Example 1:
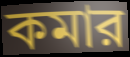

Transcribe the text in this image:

কমার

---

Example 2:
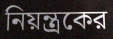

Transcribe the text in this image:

নিয়ন্ত্রকের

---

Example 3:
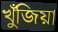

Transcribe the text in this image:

খুঁজিয়া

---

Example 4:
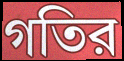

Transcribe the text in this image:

গতির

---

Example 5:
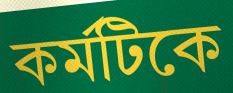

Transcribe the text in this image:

কর্মটিকে